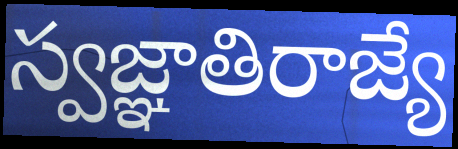
స్వజ్ఞాతిరాజ్యే